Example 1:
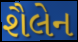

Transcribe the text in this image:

શૈલેન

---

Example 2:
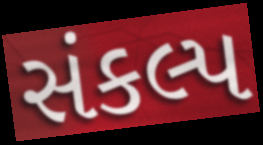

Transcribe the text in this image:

સંકલ્પ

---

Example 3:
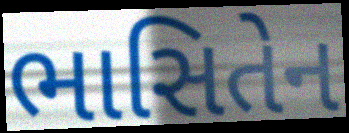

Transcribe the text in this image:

ભાસિતેન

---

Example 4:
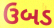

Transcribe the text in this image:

ઉબડ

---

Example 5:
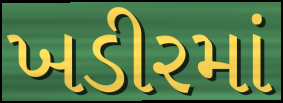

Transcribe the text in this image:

ખડીરમાં